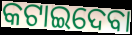
କଟାଇଦେବା